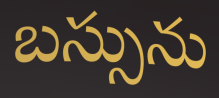
బస్సును